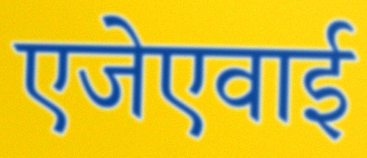
एजेएवाई